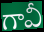
గావీ